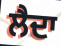
ਲੈਦਾ